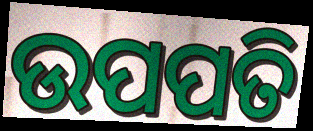
ଉପପତି